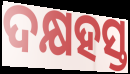
ଦକ୍ଷହସ୍ତ